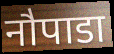
नौपाडा